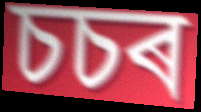
চচৰ